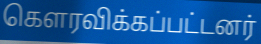
கௌரவிக்கப்பட்டனர்